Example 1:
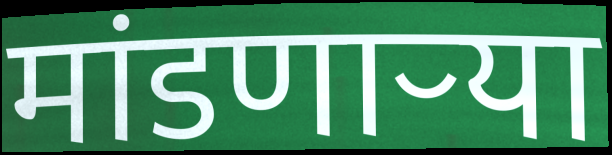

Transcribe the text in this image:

मांडणाऱ्या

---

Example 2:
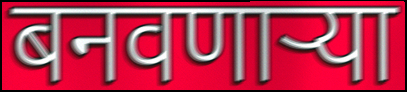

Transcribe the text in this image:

बनवणाऱ्या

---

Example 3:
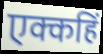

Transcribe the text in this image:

एक्कहिं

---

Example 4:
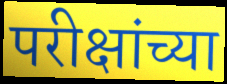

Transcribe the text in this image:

परीक्षांच्या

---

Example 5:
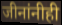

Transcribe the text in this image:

जीनांनीही